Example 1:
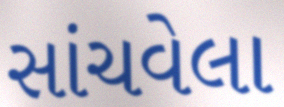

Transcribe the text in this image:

સાંચવેલા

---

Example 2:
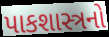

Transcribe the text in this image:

પાકશાસ્ત્રનો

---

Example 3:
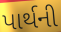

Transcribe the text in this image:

પાર્થની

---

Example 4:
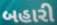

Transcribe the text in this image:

બહારી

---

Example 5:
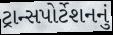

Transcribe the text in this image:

ટ્રાન્સપોર્ટેશનનું